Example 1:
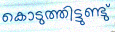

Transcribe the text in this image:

കൊടുത്തിട്ടുണ്ടു്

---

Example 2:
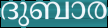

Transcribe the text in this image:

ദുബാര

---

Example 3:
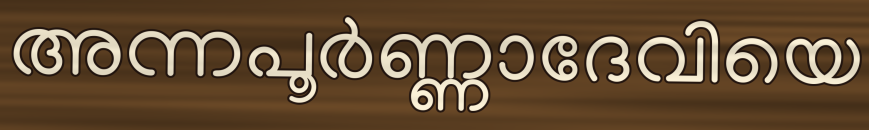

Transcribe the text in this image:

അന്നപൂർണ്ണാദേവിയെ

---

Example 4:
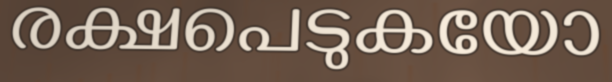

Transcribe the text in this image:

രക്ഷപെടുകയോ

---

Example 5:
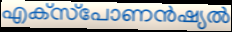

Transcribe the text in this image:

എക്‌സ്‌പോണൻഷ്യൽ